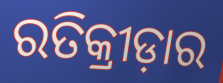
ରତିକ୍ରୀଡ଼ାର